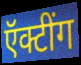
ऍक्टींग